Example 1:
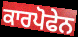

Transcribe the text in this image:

ਕਾਰਪੋਫੇਨ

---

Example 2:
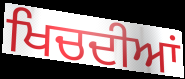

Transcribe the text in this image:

ਖਿਚਦੀਆਂ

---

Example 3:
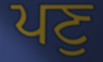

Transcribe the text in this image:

ਪਣੁ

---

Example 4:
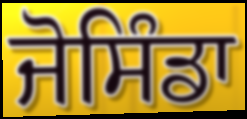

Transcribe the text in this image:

ਜੋਸਿੰਡਾ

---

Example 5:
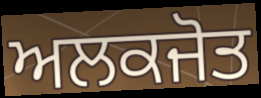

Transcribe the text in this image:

ਅਲਕਜੋਤ